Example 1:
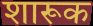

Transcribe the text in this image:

शारूक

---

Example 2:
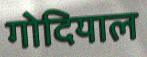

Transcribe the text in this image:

गोदियाल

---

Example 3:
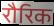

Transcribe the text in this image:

रौरिक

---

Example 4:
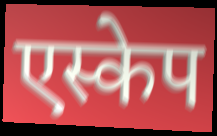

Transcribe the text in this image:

एस्केप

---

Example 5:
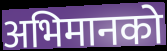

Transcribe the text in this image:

अभिमानको